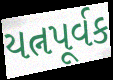
યત્નપૂર્વક